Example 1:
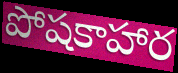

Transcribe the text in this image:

పోషకాహార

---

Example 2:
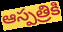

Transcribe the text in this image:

ఆస్పత్రికి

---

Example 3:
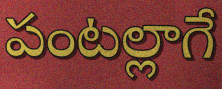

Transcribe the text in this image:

పంటల్లాగే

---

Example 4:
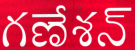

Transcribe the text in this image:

గణేశన్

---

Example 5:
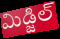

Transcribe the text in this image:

మిడ్జిల్